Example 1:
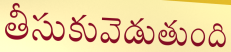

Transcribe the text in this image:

తీసుకువెడుతుంది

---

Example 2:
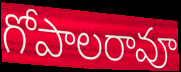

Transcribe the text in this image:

గోపాలరావూ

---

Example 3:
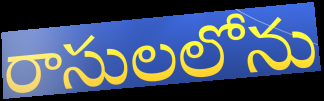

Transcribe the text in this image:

రాసులలోను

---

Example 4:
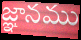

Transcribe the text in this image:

జ్ఞానము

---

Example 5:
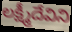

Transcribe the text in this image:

లక్ష్మీదేవిని